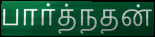
பார்த்நதன்